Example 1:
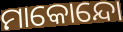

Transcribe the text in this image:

ମାକୋନ୍ଦୋ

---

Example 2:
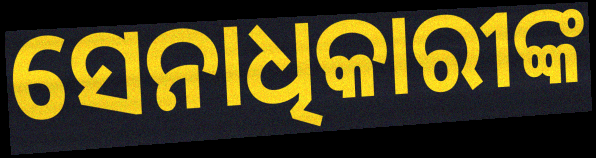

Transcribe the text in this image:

ସେନାଧିକାରୀଙ୍କ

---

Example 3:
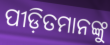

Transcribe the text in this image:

ପୀଡ଼ିତମାନଙ୍କୁ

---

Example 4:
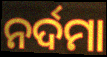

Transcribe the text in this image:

ନର୍ଦମା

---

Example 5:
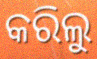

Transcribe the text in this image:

କରିଲୁ